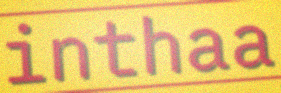
inthaa